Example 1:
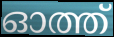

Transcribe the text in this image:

ഓത്ത്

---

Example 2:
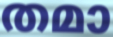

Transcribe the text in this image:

തമാ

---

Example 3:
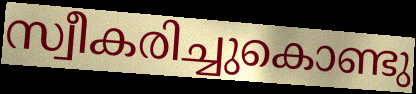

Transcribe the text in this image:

സ്വീകരിച്ചുകൊണ്ടു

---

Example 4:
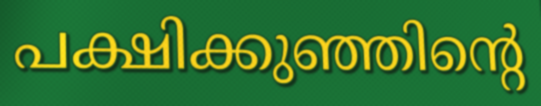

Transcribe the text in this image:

പക്ഷിക്കുഞ്ഞിന്റെ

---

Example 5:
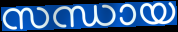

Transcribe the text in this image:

സന്ധായ